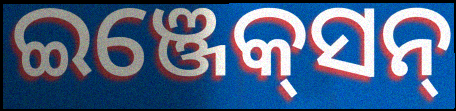
ଇଞ୍ଜେକ୍‍ସନ୍